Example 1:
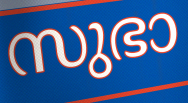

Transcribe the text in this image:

സുഭാ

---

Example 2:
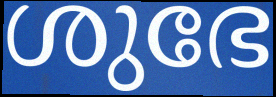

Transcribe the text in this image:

ശുഭേ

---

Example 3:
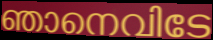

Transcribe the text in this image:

ഞാനെവിടേ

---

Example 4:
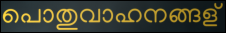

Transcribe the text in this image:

പൊതുവാഹനങ്ങള്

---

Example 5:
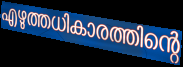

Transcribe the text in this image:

എഴുത്തധികാരത്തിന്റെ